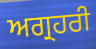
ਅਗ੍ਰਹਰੀ